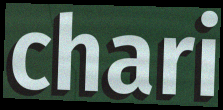
chari